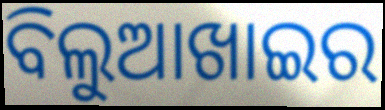
ବିଲୁଆଖାଇର